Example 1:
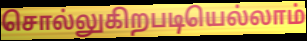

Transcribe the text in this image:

சொல்லுகிறபடியெல்லாம்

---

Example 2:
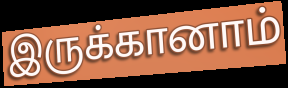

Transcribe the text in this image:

இருக்கானாம்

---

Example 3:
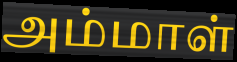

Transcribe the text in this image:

அம்மாள்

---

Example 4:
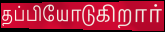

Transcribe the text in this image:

தப்பியோடுகிறார்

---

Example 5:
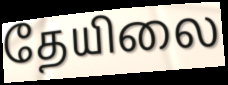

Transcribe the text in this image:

தேயிலை